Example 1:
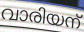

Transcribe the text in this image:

വാരിയന്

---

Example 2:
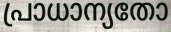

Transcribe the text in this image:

പ്രാധാന്യതോ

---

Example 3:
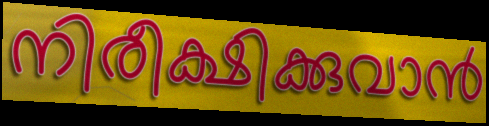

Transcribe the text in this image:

നിരീക്ഷിക്കുവാൻ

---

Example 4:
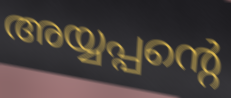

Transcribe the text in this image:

അയ്യപ്പന്റെ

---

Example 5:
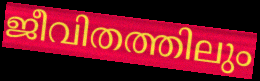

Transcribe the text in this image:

ജീവിതത്തിലും